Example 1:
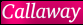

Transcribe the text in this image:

Callaway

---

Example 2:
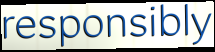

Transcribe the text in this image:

responsibly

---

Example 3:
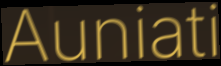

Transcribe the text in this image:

Auniati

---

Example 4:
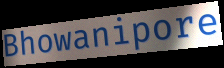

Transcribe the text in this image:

Bhowanipore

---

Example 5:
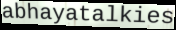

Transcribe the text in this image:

abhayatalkies